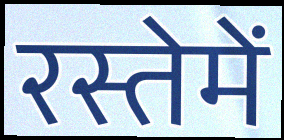
रस्तेमें